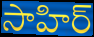
సాహిర్